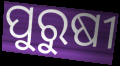
ପୁରୁଷୀ